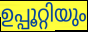
ഉപ്പൂറ്റിയും